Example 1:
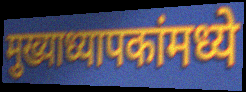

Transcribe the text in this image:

मुख्याध्यापकांमध्ये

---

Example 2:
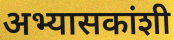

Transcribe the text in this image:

अभ्यासकांशी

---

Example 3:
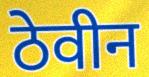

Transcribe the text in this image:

ठेवीन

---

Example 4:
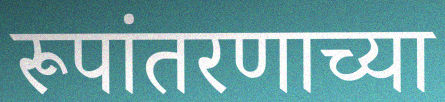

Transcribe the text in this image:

रूपांतरणाच्या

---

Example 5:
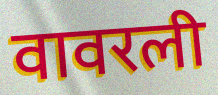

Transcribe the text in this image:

वावरली